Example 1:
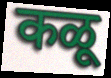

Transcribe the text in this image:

कळू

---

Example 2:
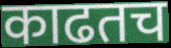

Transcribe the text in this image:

काढतच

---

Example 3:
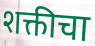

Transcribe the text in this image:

शक्तीचा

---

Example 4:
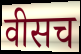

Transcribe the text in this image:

वीसच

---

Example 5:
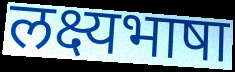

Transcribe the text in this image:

लक्ष्यभाषा